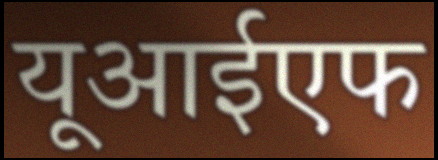
यूआईएफ